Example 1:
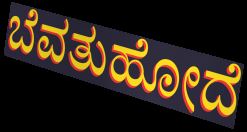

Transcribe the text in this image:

ಬೆವತುಹೋದೆ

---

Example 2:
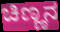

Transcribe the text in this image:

ಚಿಣ್ಣನ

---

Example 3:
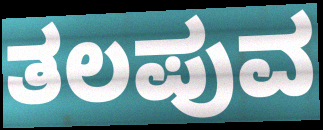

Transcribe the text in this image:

ತಲಪುವ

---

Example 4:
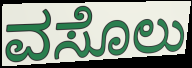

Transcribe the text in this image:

ವಸೊಲು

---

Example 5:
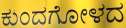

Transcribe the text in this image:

ಕುಂದಗೋಳದ